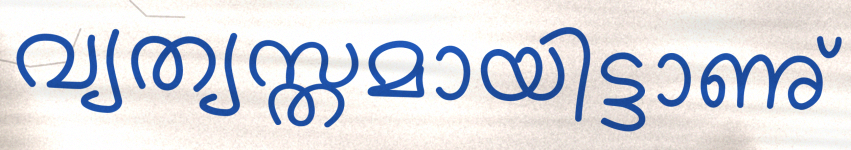
വ്യത്യസ്തമായിട്ടാണു്